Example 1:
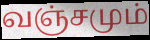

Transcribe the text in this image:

வஞ்சமும்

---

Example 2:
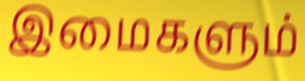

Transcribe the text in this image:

இமைகளும்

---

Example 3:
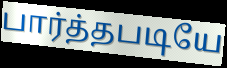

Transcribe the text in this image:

பார்த்தபடியே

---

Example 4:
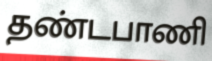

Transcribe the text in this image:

தண்டபாணி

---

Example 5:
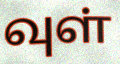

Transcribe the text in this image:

வுள்